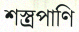
শস্ত্রপাণি